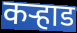
कऱ्हाड